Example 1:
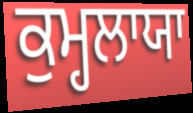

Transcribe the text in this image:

ਕੁਮ੍ਹਲਾਯਾ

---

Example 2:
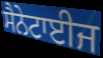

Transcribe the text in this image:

ਸੈਨੇਟਾਈਜ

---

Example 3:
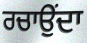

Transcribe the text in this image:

ਰਚਾਉਂਦਾ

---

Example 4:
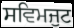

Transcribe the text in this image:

ਸਵਿਮਜੁਟ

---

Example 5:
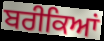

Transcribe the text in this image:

ਬਰੀਕਿਆਂ